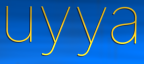
uyya